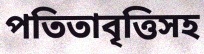
পতিতাবৃত্তিসহ